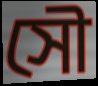
সৌ